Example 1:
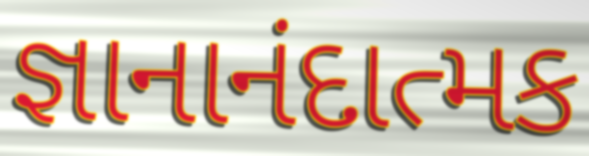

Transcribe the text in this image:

જ્ઞાનાનંદાત્મક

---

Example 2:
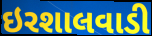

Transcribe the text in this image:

ઇરશાલવાડી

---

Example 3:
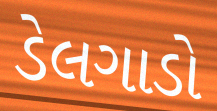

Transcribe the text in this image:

ડેલગાડો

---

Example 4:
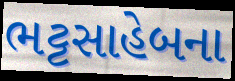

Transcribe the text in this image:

ભટ્ટસાહેબના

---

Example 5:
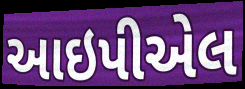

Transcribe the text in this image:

આઇપીએલ